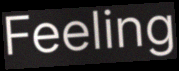
Feeling